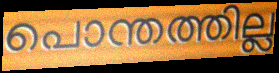
പൊന്തത്തില്ല